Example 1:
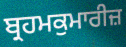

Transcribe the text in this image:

ਬ੍ਰਹਮਕੁਮਾਰੀਜ਼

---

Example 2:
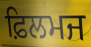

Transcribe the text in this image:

ਫ਼ਿਲਮਜ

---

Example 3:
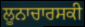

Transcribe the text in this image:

ਲੂਨਾਚਾਰਸਕੀ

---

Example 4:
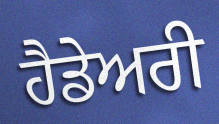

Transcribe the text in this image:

ਹੈਡੇਅਰੀ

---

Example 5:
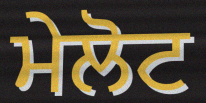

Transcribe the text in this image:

ਮੇਲੋਟ